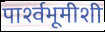
पार्श्वभूमीशी